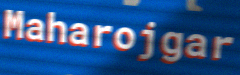
Maharojgar